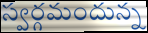
స్వర్గమందున్న